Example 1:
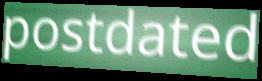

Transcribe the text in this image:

postdated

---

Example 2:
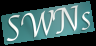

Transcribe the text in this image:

SWNs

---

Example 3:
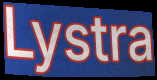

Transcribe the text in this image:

Lystra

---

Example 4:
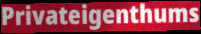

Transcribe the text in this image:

Privateigenthums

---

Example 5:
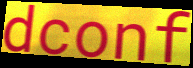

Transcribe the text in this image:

dconf